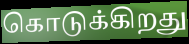
கொடுக்கிறது